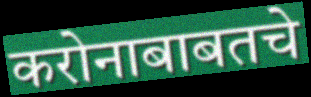
करोनाबाबतचे